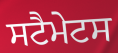
ਸਟੈਮੇਟਸ